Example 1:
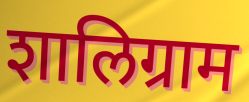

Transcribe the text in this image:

शालिग्राम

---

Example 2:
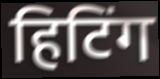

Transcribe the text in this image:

हिटिंग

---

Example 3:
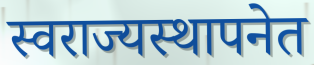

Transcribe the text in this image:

स्वराज्यस्थापनेत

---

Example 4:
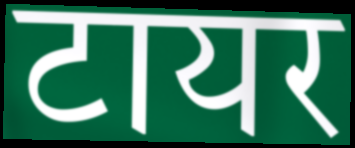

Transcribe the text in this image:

टायर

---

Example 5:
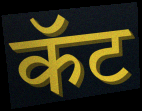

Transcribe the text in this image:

कॅट